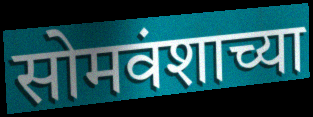
सोमवंशाच्या